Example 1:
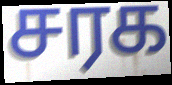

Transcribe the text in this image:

சரக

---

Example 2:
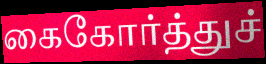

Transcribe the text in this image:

கைகோர்த்துச்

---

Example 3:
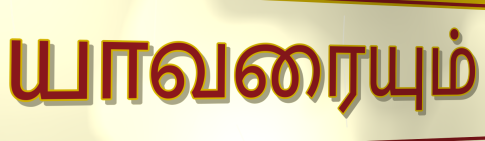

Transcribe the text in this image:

யாவரையும்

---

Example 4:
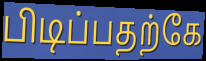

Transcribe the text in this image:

பிடிப்பதற்கே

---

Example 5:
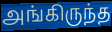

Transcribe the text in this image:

அங்கிருந்த